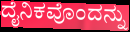
ದೈನಿಕವೊಂದನ್ನು